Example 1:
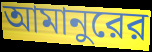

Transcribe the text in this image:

আমানুরের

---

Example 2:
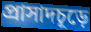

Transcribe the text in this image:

প্রাসাদচূড়ে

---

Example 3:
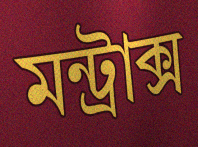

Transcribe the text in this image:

মন্ট্রাক্স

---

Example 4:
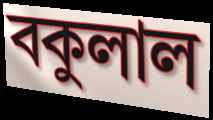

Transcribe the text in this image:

বকুলাল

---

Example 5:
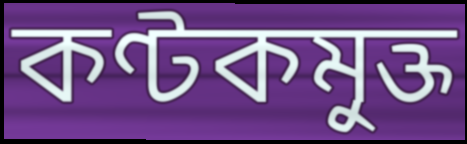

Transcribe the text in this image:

কণ্টকমুক্ত